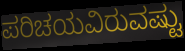
ಪರಿಚಯವಿರುವಷ್ಟು